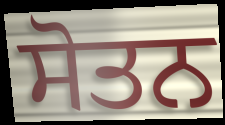
ਸੋਤਨ